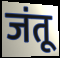
जंतू